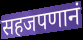
सहजपणानं